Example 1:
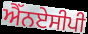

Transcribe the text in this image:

ਐੱਨਏਸੀਪੀ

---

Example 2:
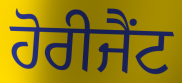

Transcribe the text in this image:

ਹੋਰੀਜੈਂਟ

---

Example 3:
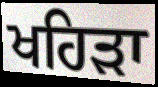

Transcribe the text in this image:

ਖਹਿਡ਼ਾ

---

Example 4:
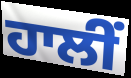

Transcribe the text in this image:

ਹਾਲੀਂ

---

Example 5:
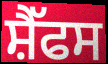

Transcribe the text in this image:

ਸ਼ੈੱਫਸ